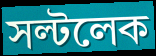
সল্টলেক